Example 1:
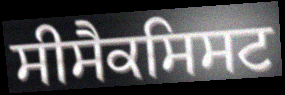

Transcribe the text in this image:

ਸੀਸੈਕਸਿਸਟ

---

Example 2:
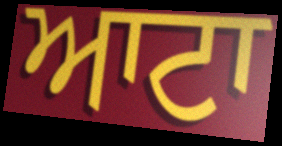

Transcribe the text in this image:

ਆਟਾ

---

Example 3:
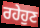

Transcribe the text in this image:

ਰਹੇਹੁਣ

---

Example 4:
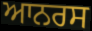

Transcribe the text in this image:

ਆਨਰਸ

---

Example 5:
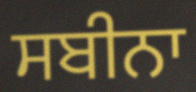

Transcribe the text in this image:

ਸਬੀਨਾ